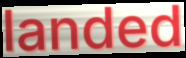
landed